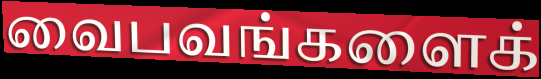
வைபவங்களைக்